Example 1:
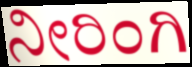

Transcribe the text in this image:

ನೀರಿಂಗಿ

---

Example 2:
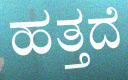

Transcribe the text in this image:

ಹತ್ತದೆ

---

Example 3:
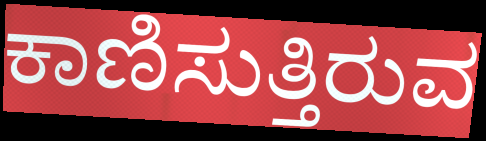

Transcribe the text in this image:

ಕಾಣಿಸುತ್ತಿರುವ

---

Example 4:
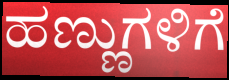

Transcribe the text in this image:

ಹಣ್ಣುಗಳಿಗೆ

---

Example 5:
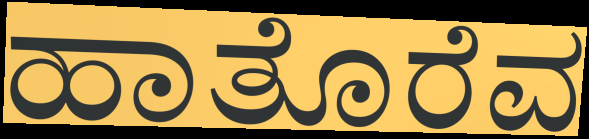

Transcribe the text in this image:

ಹಾತೊರೆವ